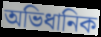
অভিধানিক